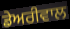
ਡੇਅਰੀਵਾਲ